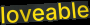
loveable